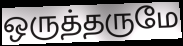
ஒருத்தருமே